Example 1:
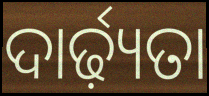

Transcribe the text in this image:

ଦାର୍ଢ଼୍ୟତା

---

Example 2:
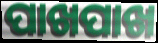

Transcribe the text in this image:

ପାଖପାଖ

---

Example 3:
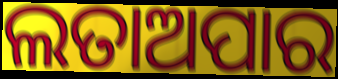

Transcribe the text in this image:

ଲତାଅପାର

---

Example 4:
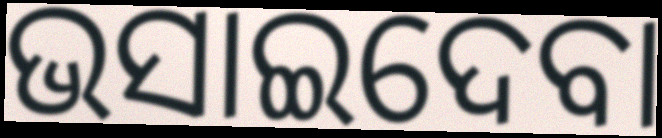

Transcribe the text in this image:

ଭସାଇଦେବା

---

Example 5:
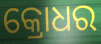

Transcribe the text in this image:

କ୍ରୋଧର